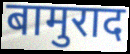
बामुराद